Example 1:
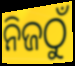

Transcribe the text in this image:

ନିଜଠୁଁ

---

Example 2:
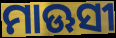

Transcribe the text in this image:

ମାଊସୀ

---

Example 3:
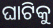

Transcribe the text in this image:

ଘାଟିକୁ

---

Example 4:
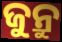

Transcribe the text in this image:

ଜୁନ୍ରୁ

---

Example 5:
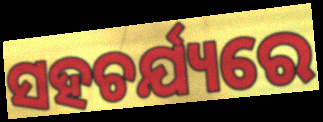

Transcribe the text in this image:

ସହଚର୍ଯ୍ୟରେ